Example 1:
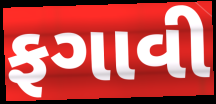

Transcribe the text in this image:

ફગાવી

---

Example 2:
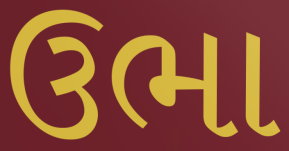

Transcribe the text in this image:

ઉભા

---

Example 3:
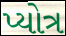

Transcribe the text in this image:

પ્યોત્ર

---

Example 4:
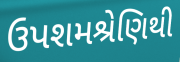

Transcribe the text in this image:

ઉપશમશ્રેણિથી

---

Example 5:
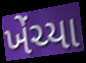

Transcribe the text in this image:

ખેંચ્યા